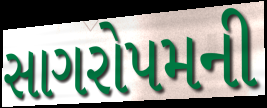
સાગરોપમની